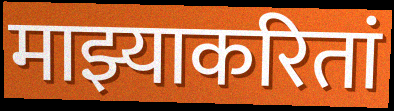
माझ्याकरितां